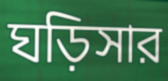
ঘড়িসার